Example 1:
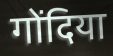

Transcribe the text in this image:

गोंदिया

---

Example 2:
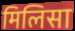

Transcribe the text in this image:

मिलिसा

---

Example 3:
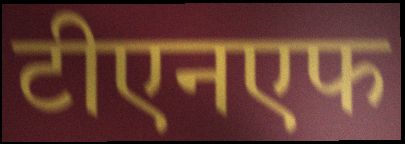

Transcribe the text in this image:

टीएनएफ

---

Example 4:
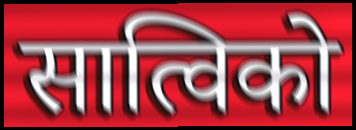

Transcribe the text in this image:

सात्विको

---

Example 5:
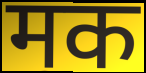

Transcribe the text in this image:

मक